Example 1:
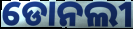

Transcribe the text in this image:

ଡୋନଲୀ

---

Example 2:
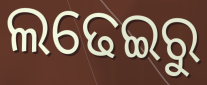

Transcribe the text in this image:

ଲଢେଇରୁ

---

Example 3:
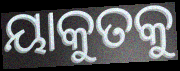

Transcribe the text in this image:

ୟାକୁତକୁ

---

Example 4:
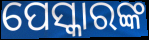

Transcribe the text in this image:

ପେସ୍କାରଙ୍କ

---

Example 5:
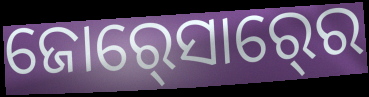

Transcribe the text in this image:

ଜୋର୍‍ସୋର୍‍ରେ